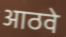
आठवे